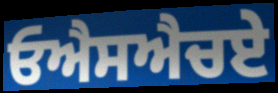
ਓਐਸਐਚਏ